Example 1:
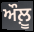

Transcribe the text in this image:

ਔਲ਼ੂ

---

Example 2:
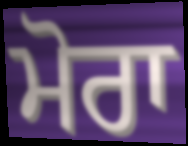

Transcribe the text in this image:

ਮੋਰਾ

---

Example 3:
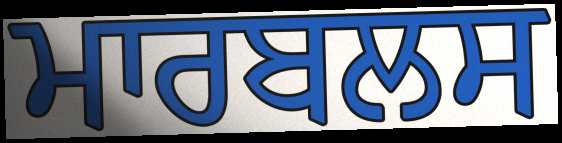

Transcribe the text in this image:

ਮਾਰਬਲਸ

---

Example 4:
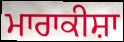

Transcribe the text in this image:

ਮਾਰਾਕੀਸ਼ਾ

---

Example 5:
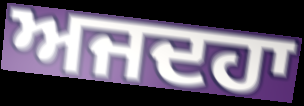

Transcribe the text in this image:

ਅਜਦਹਾ